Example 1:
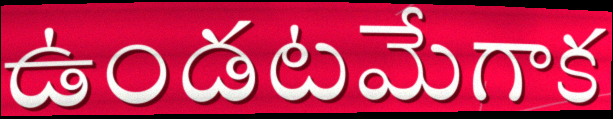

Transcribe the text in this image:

ఉండటమేగాక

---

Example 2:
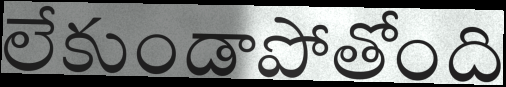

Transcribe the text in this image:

లేకుండాపోతోంది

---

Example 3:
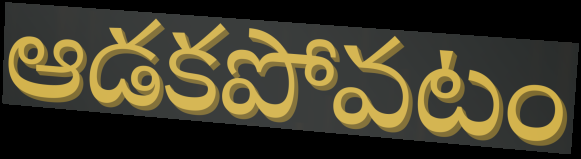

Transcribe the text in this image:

ఆడకపోవటం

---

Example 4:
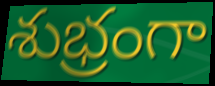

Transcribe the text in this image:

శుభ్రంగా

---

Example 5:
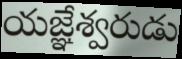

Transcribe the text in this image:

యజ్ఞేశ్వరుడు